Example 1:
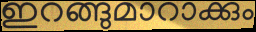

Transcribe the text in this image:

ഇറങ്ങുമാറാക്കും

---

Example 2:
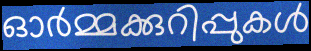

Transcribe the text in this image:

ഓർമ്മക്കുറിപ്പുകൾ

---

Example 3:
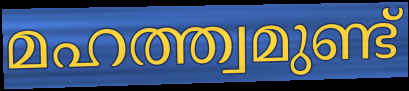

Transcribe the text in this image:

മഹത്ത്വമുണ്ട്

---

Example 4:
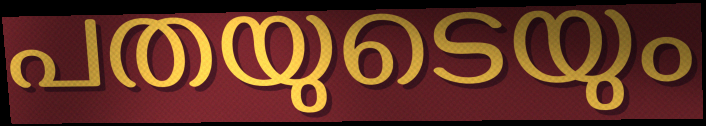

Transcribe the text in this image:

പതയുടെയും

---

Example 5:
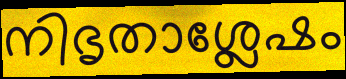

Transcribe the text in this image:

നിഭൃതാശ്ലേഷം